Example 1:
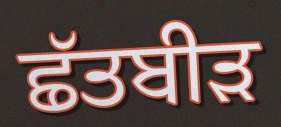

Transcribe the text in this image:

ਛੱਤਬੀੜ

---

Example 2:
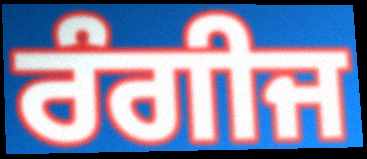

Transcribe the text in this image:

ਰੰਗੀਜ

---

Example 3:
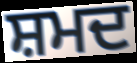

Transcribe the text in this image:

ਸ਼ਮਦ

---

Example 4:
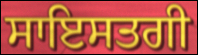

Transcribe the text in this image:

ਸਾਇਸਤਗੀ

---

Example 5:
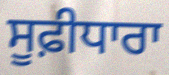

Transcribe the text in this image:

ਸੂਫ਼ੀਧਾਰਾ